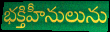
భక్తిహీనులును